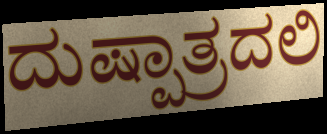
ದುಷ್ಪಾತ್ರದಲಿ